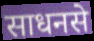
साधनसे